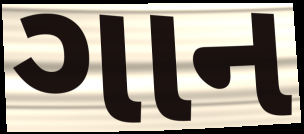
ગાન